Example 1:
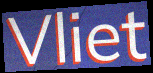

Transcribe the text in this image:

Vliet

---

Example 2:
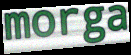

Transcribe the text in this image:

morga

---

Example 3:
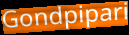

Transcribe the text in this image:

Gondpipari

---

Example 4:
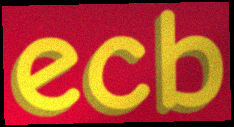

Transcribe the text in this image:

ecb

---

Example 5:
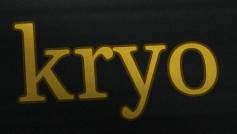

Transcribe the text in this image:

kryo